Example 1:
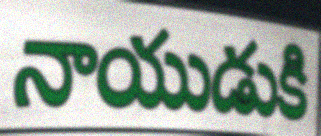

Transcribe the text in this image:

నాయుడుకి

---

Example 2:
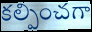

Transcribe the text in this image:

కల్పించగా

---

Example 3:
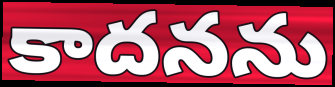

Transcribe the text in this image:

కాదనను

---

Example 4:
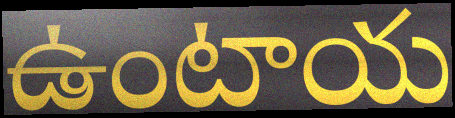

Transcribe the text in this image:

ఉంటాయ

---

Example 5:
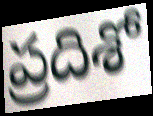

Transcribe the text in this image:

ప్రదిశో